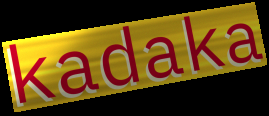
kadaka